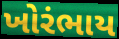
ખોરંભાય